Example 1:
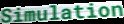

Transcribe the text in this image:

Simulation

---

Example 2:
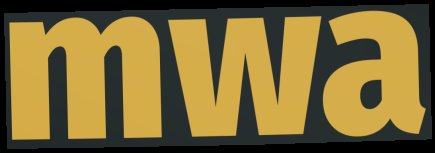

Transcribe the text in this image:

mwa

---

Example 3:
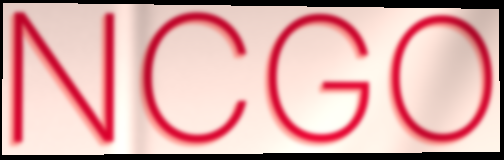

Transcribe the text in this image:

NCGO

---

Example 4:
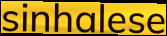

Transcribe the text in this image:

sinhalese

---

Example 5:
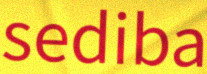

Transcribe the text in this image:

sediba